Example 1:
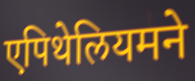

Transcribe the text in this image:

एपिथेलियमने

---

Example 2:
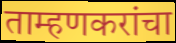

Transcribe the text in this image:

ताम्हणकरांचा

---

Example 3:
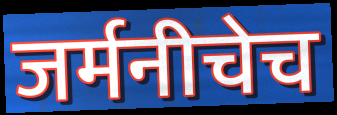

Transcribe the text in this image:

जर्मनीचेच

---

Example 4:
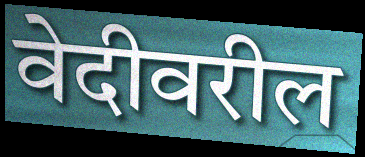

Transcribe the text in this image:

वेदीवरील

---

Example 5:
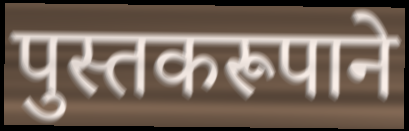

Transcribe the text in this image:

पुस्तकरूपाने